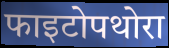
फाइटोपथोरा